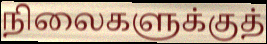
நிலைகளுக்குத்